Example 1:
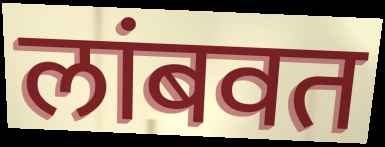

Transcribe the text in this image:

लांबवत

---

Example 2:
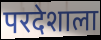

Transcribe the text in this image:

परदेशाला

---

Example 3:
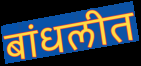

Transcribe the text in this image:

बांधलीत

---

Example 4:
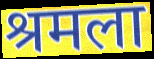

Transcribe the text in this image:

श्रमला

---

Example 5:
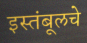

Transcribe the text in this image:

इस्तंबूलचे